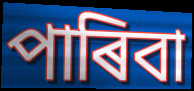
পাৰিবা